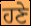
ਹਣੇ